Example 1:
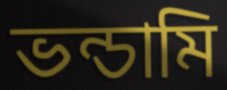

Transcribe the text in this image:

ভন্ডামি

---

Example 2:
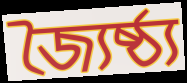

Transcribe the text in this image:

জ্যৈষ্ঠ্য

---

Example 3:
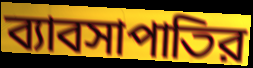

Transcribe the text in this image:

ব্যাবসাপাতির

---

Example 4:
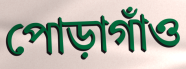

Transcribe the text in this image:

পোড়াগাঁও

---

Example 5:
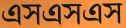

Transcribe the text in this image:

এসএসএস